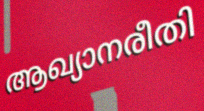
ആഖ്യാനരീതി